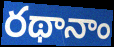
రథానాం